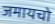
जमायचो